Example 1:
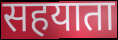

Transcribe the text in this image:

सहयाता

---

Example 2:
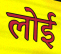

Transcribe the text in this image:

लोई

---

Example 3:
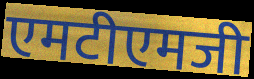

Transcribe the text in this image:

एमटीएमजी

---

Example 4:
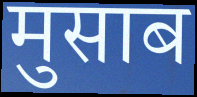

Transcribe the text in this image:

मुसाब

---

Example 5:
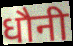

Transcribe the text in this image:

धौनी